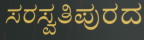
ಸರಸ್ವತಿಪುರದ